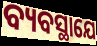
ବ୍ୟବସ୍ଥାଯେ